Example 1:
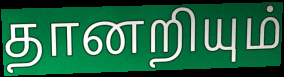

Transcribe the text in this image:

தானறியும்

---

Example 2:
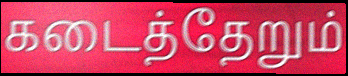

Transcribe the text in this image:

கடைத்தேறும்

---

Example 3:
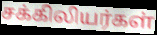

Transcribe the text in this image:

சக்கிலியர்கள்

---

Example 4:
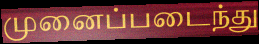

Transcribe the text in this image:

முனைப்படைந்து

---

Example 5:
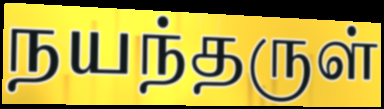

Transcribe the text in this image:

நயந்தருள்